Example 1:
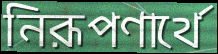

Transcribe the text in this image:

নিরূপণার্থে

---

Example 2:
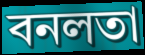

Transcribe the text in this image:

বনলতা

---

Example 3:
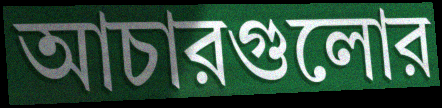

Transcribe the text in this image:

আচারগুলোর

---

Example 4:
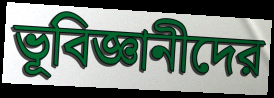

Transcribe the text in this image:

ভূবিজ্ঞানীদের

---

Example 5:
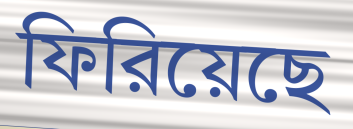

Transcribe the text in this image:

ফিরিয়েছে